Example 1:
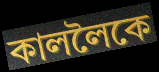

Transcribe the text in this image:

কাললৈকে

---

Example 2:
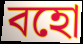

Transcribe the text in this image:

বহো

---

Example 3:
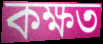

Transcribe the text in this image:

কক্ষত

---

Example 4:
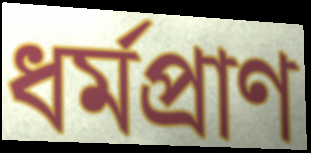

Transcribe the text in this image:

ধৰ্মপ্ৰাণ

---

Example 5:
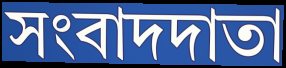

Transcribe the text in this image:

সংবাদদাতা